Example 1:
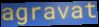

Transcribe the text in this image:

agravat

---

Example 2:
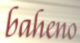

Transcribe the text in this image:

baheno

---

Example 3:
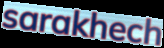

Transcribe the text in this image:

sarakhech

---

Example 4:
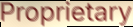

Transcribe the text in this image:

Proprietary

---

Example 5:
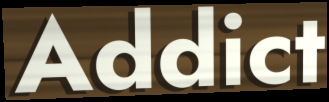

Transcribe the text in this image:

Addict